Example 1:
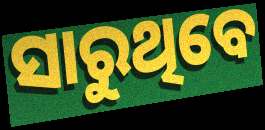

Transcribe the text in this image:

ସାରୁଥିବେ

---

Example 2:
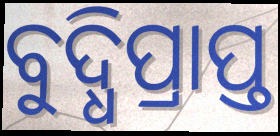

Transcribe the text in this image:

ବୁଦ୍ଧିପ୍ରାପ୍ତ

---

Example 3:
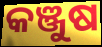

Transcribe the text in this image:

କଞ୍ଜୁଷ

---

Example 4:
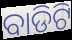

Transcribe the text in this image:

ବାଡିଟି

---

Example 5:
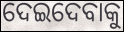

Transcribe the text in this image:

ଦେଇଦେବାକୁ